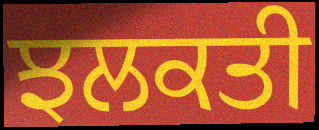
ਝਲਕਤੀ